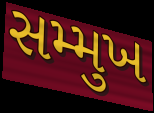
સમ્મુખ